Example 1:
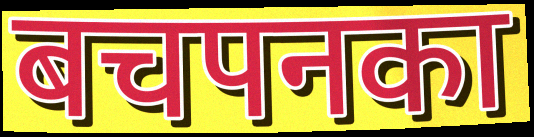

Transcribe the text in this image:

बचपनका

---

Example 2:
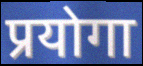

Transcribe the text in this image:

प्रयोगा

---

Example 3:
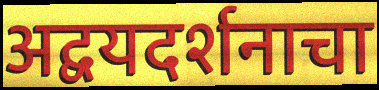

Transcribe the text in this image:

अद्वयदर्शनाचा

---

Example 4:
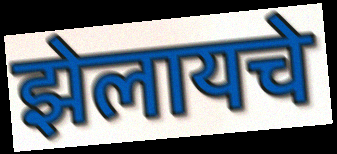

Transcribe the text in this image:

झेलायचे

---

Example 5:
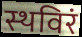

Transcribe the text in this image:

स्थविरं